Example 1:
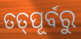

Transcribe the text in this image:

ତତ୍‌ପୂର୍ବରୁ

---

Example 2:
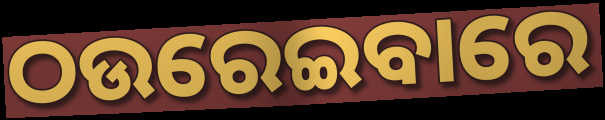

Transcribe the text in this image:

ଠଉରେଇବାରେ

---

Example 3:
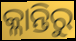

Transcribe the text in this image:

କ୍ଳାନ୍ତିରୁ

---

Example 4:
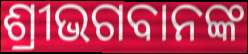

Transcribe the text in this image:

ଶ୍ରୀଭଗବାନଙ୍କ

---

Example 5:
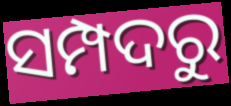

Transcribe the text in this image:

ସମ୍ପଦରୁ